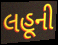
લહૂની